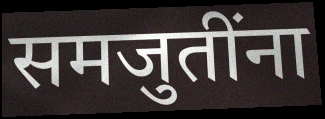
समजुतींना